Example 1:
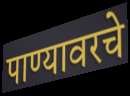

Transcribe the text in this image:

पाण्यावरचे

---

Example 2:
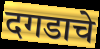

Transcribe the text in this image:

दगडाचे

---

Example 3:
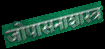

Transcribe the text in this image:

जोपासनाशास्त्र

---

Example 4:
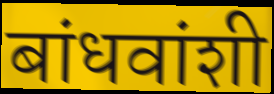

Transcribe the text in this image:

बांधवांशी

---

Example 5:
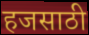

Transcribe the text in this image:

हजसाठी